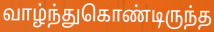
வாழ்ந்துகொண்டிருந்த